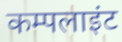
कम्पलाइंट